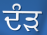
ਦੰੜ